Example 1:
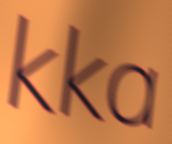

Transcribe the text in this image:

kka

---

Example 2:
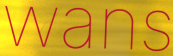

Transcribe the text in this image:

wans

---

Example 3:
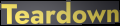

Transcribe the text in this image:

Teardown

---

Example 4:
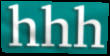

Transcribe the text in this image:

hhh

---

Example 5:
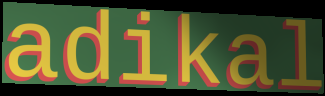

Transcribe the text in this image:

adikal